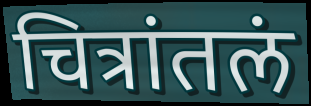
चित्रांतलं